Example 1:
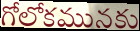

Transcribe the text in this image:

గోలోకమునకు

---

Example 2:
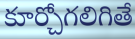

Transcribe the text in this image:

కూర్చోగలిగితే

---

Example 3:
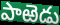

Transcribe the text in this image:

పాఱెడు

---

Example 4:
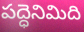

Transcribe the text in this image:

పద్ధెనిమిది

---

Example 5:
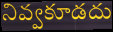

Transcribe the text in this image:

నివ్వకూడదు